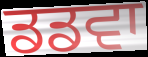
ਡਡਵਾ